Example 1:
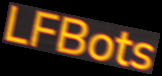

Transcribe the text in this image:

LFBots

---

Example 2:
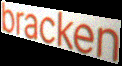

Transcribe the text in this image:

bracken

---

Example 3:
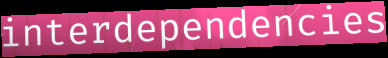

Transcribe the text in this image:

interdependencies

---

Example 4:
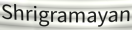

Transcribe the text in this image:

Shrigramayan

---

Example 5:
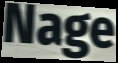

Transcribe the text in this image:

Nage